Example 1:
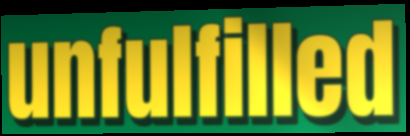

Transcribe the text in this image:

unfulfilled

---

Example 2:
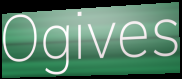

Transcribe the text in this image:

Ogives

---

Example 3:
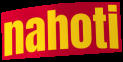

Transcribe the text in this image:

nahoti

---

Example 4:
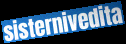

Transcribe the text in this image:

sisternivedita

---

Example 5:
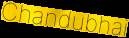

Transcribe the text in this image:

Chandubhai